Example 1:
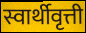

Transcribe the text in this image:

स्वार्थीवृत्ती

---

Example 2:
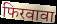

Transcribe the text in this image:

फिरवावा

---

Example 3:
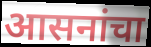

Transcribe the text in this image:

आसनांचा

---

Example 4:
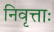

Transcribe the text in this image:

निवृत्ताः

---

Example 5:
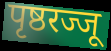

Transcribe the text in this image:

पृष्ठरज्जू